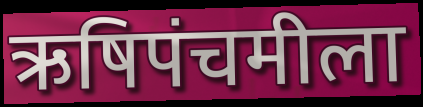
ऋषिपंचमीला